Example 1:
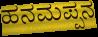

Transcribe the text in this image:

ಹನಮಪ್ಪನ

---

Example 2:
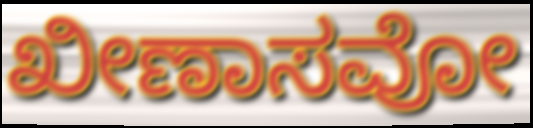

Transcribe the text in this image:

ಖೀಣಾಸವೋ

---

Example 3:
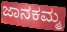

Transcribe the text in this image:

ಜಾನಕಮ್ಮ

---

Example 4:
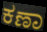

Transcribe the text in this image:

ಕಣಾ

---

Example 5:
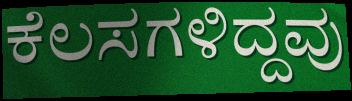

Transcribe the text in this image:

ಕೆಲಸಗಳಿದ್ದವು